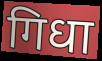
गिधा